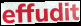
effudit